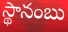
స్థానంబు